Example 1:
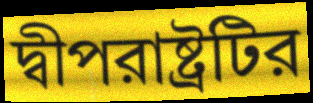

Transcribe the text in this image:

দ্বীপরাষ্ট্রটির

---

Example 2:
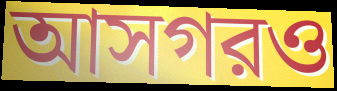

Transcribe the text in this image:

আসগরও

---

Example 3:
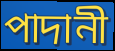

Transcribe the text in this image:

পাদানী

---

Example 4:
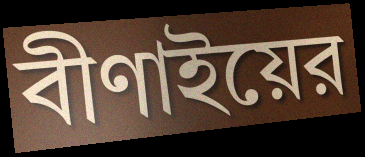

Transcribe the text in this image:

বীণাইয়ের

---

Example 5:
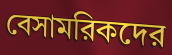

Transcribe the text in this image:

বেসামরিকদের